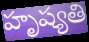
హృష్యతి